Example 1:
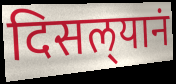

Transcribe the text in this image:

दिसल्यानं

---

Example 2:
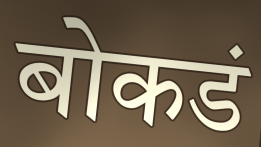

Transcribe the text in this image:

बोकडं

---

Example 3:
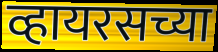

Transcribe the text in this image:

व्हायरसच्या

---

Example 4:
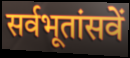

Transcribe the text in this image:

सर्वभूतांसवें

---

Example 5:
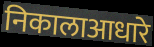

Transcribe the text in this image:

निकालाआधारे